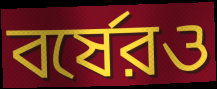
বর্ষেরও